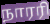
நாரரி